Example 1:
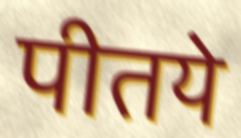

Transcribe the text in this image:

पीतये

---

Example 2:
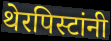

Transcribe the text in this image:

थेरपिस्टांनी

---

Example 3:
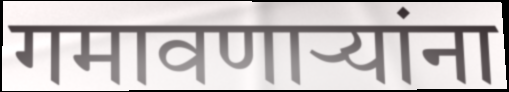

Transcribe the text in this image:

गमावणाऱ्यांना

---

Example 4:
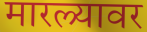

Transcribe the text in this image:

मारल्यावर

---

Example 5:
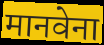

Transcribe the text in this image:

मानवेना